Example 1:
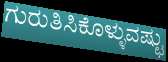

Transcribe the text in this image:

ಗುರುತಿಸಿಕೊಳ್ಳುವಷ್ಟು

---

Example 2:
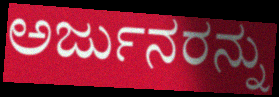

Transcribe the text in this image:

ಅರ್ಜುನರನ್ನು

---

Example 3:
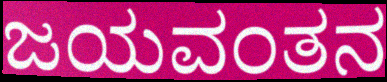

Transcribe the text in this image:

ಜಯವಂತನ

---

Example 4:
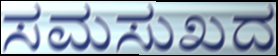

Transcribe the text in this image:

ಸಮಸುಖದ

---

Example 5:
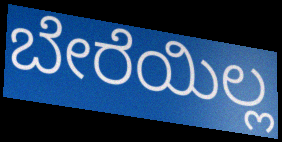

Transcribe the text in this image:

ಬೇರೆಯಿಲ್ಲ